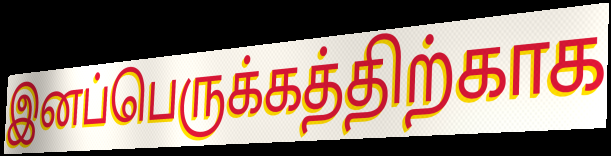
இனப்பெருக்கத்திற்காக